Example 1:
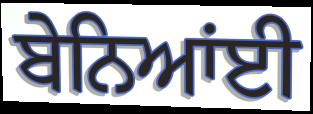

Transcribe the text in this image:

ਬੇਨਿਆਂਈ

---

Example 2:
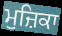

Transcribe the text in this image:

ਮੁਜ਼ਿਕਾ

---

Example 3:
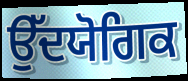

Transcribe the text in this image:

ਉੱਦਯੋਗਿਕ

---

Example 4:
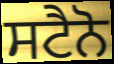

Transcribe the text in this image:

ਸਟੈਨੋ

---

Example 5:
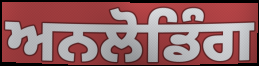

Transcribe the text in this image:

ਅਨਲੋਡਿੰਗ